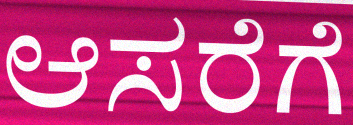
ಆಸರೆಗೆ